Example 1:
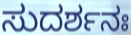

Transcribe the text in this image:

ಸುದರ್ಶನಃ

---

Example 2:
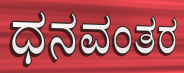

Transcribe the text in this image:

ಧನವಂತರ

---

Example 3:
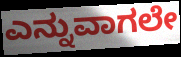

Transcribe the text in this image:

ಎನ್ನುವಾಗಲೇ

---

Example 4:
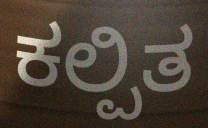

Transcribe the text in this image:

ಕಲ್ಪಿತ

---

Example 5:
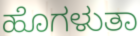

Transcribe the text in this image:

ಹೊಗಳುತಾ